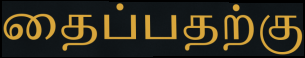
தைப்பதற்கு